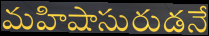
మహిషాసురుడనే